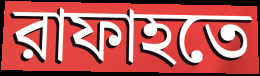
রাফাহতে